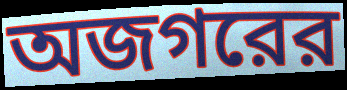
অজগরের